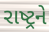
રાષ્ટ્રને